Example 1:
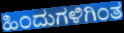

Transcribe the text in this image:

ಹಿಂದುಗಳಿಗಿಂತ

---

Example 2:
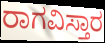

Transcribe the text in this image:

ರಾಗವಿಸ್ತಾರ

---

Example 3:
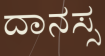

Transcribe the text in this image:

ದಾನಸ್ಸ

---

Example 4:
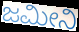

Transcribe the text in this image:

ಜಮೀನಿ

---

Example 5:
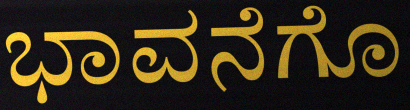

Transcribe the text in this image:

ಭಾವನೆಗೊ